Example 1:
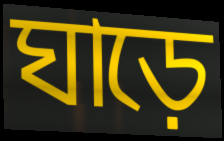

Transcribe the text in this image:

ঘাড়ে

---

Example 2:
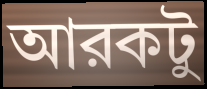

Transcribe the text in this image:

আরকটু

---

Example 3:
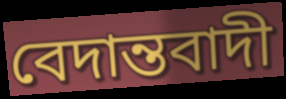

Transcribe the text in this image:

বেদান্তবাদী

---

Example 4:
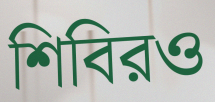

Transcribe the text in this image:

শিবিরও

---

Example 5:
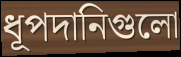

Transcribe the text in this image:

ধূপদানিগুলো